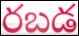
రబడ